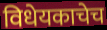
विधेयकाचेच